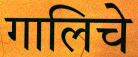
गालिचे